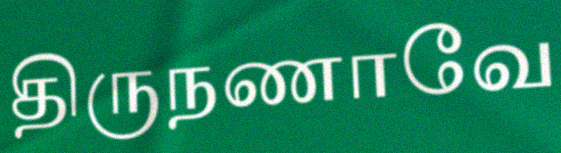
திருநணாவே